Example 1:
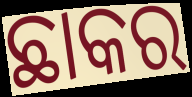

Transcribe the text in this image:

ଛାକର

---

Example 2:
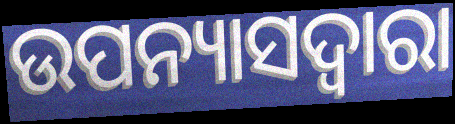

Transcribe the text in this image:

ଉପନ୍ୟାସଦ୍ୱାରା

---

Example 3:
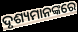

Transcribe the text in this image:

ଦୃଶ୍ୟମାନଙ୍କରେ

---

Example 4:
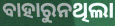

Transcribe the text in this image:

ବାହାରୁନଥିଲା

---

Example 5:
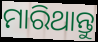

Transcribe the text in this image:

ମାରିଥାନ୍ତୁ